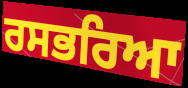
ਰਸਭਰਿਆ